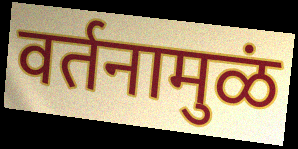
वर्तनामुळं